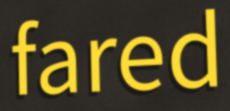
fared